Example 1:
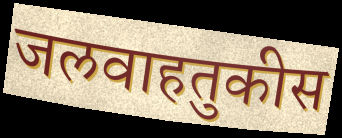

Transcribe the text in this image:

जलवाहतुकीस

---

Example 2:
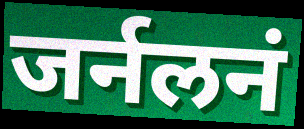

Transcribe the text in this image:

जर्नलनं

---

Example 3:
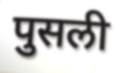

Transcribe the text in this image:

पुसली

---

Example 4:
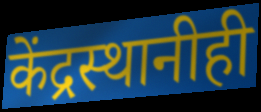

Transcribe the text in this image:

केंद्रस्थानीही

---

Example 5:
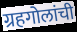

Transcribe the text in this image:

ग्रहगोलांची